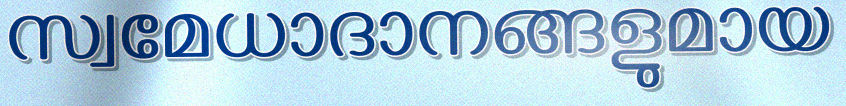
സ്വമേധാദാനങ്ങളുമായ